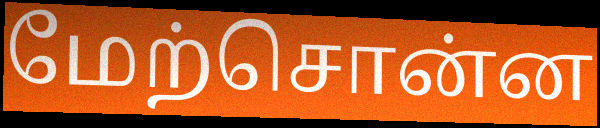
மேற்சொன்ன